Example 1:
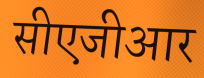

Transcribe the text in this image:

सीएजीआर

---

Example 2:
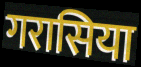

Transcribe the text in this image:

गरासिया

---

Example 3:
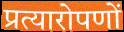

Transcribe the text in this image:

प्रत्यारोपणों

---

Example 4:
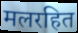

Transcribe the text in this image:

मलरहित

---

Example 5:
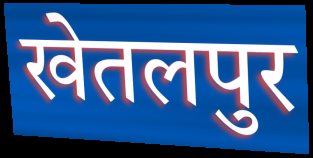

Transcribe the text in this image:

खेतलपुर